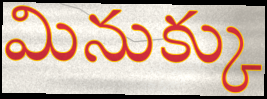
మినుక్కు